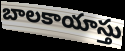
బాలకాయాస్తు